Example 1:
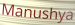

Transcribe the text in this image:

Manushya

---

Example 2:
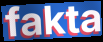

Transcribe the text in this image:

fakta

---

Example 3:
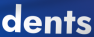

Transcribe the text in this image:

dents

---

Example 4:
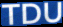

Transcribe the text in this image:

TDU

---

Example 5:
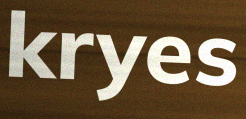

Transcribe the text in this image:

kryes